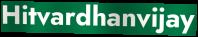
Hitvardhanvijay